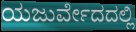
ಯಜುರ್ವೇದದಲ್ಲಿ